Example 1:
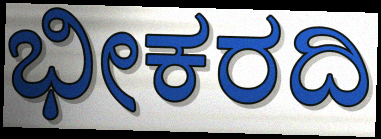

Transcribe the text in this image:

ಭೀಕರದಿ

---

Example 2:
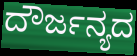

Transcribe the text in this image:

ದೌರ್ಜನ್ಯದ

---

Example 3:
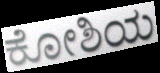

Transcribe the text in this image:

ಕೋಶಿಯ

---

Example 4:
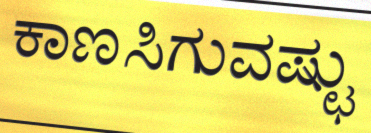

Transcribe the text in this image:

ಕಾಣಸಿಗುವಷ್ಟು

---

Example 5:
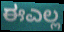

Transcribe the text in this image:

ಈಎಲ್ಲ